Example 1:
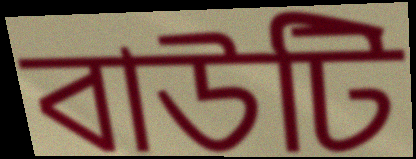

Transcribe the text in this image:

বাউটি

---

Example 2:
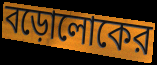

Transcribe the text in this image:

বড়োলোকের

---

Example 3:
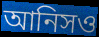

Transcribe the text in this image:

আনিসও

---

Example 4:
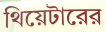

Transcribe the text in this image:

থিয়েটারের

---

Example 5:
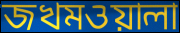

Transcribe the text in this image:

জখমওয়ালা